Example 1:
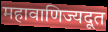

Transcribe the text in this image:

महावाणिज्यदूत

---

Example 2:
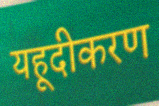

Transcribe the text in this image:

यहूदीकरण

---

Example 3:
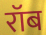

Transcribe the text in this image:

रॉब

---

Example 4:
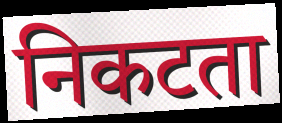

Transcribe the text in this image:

निकटता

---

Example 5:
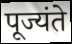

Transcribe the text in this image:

पूज्यंते